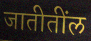
जातीतींल